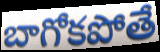
బాగోకపోతే